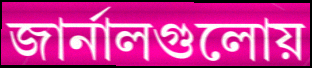
জার্নালগুলোয়